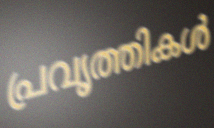
പ്രവൃത്തികൾ